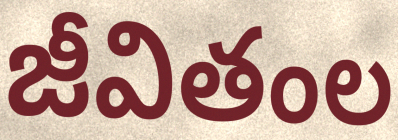
జీవితంల